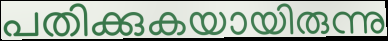
പതിക്കുകയായിരുന്നു